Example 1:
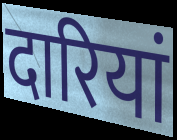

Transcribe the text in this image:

दारियां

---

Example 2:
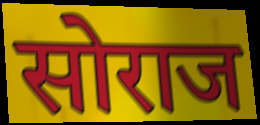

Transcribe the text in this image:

सोराज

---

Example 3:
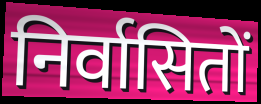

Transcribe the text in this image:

निर्वासितों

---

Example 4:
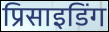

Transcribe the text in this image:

प्रिसाइडिंग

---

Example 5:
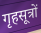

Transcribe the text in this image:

गृहसूत्रों